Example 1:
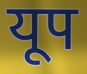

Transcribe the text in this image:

यूप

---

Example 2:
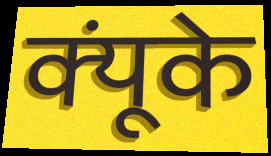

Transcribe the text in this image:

क्यूंके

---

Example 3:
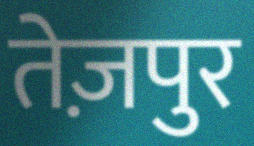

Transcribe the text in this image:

तेज़पुर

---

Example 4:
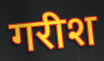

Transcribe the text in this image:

गरीश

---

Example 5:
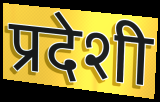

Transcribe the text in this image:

प्रदेशी